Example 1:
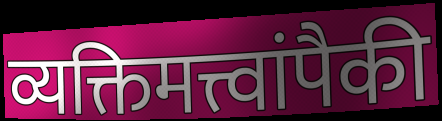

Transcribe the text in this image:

व्यक्तिमत्त्वांपैकी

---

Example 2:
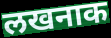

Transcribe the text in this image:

लखनाक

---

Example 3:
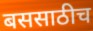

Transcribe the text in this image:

बससाठीच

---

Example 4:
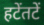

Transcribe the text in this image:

हटेंतटें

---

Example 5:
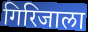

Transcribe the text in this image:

गिरिजाला